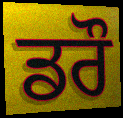
ਡਰੌ